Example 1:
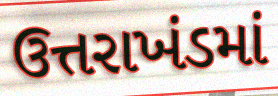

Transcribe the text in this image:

ઉત્તરાખંડમાં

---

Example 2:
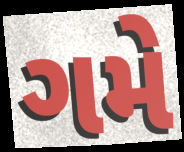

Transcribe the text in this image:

ગમે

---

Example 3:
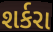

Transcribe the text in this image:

શર્કરા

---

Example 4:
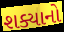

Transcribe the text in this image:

શક્યાનો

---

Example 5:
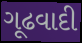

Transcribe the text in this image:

ગૂઢવાદી